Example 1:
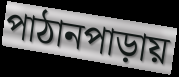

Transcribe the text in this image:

পাঠানপাড়ায়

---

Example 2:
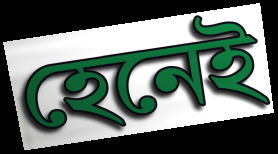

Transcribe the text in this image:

হেনেই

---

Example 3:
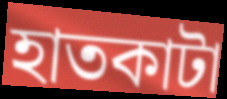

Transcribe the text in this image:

হাতকাটা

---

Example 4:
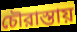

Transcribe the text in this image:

চৌরাস্তায়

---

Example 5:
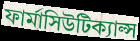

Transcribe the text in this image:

ফার্মাসিউটিক্যাল্স